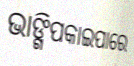
ଭାଙ୍ଗିପକାଇପାରେ